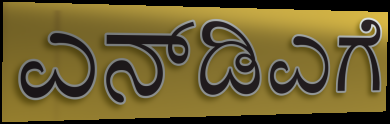
ಎನ್‌ಡಿಎಗೆ